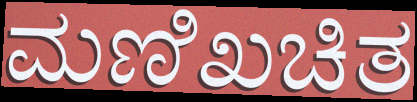
ಮಣಿಖಚಿತ